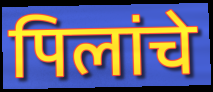
पिलांचे